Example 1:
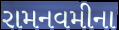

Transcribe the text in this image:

રામનવમીના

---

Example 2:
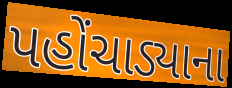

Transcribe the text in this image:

પહોંચાડ્યાના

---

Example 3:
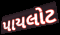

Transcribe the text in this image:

પાયલોટ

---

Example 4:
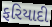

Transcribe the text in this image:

ફરિયાદી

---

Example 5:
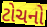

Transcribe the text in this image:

ટોચનો